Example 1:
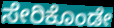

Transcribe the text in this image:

ಸೇರಿಕೊಂಡೇ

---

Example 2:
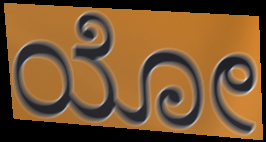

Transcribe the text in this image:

ಯೋ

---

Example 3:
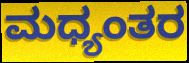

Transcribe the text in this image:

ಮಧ್ಯಂತರ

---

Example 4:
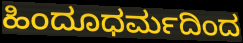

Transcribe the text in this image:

ಹಿಂದೂಧರ್ಮದಿಂದ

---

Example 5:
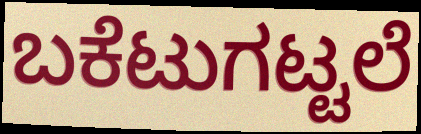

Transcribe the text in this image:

ಬಕೆಟುಗಟ್ಟಲೆ